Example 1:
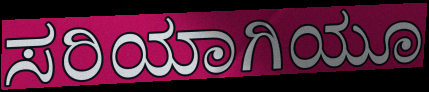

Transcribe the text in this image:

ಸರಿಯಾಗಿಯೂ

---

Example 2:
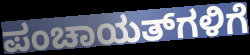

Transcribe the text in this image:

ಪಂಚಾಯತ್‌ಗಳಿಗೆ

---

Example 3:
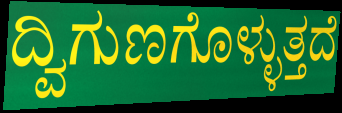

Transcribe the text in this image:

ದ್ವಿಗುಣಗೊಳ್ಳುತ್ತದೆ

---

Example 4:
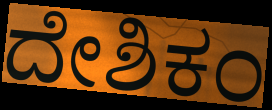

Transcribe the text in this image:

ದೇಶಿಕಂ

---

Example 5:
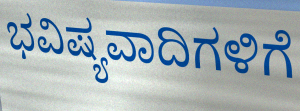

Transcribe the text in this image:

ಭವಿಷ್ಯವಾದಿಗಳಿಗೆ